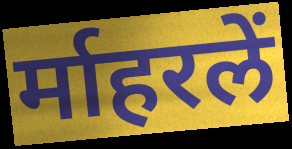
र्माहरलें